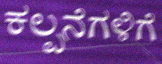
ಕಲ್ಪನೆಗಳಿಗೆ